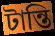
টান্তি